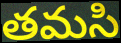
తమసి